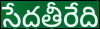
సేదతీరేది